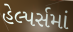
હેલ્પર્સમાં